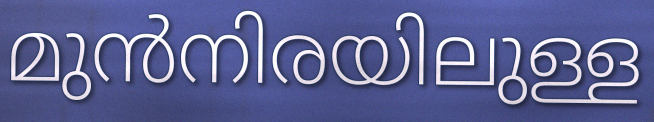
മുൻനിരയിലുള്ള